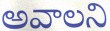
అవాలని